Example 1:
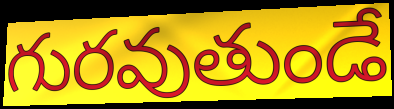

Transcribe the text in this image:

గురవుతుండే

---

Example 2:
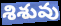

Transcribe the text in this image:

శిశువు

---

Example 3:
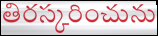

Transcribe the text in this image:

తిరస్కరించును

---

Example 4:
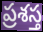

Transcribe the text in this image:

ప్రశస్త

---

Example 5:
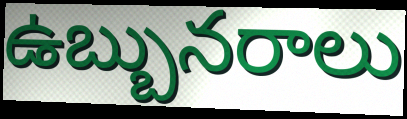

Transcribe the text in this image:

ఉబ్బునరాలు